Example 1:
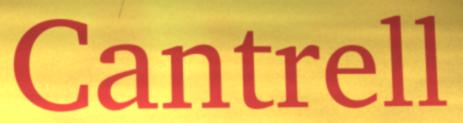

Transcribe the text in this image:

Cantrell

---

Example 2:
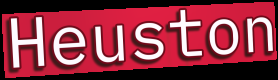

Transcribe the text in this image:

Heuston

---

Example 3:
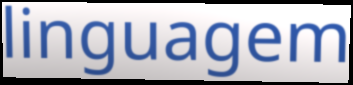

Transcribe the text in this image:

linguagem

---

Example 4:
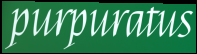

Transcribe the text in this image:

purpuratus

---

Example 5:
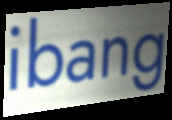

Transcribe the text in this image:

ibang